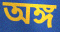
অঙ্গ